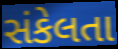
સંકેલતા